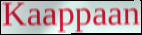
Kaappaan